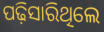
ପଢ଼ିସାରିଥିଲେ